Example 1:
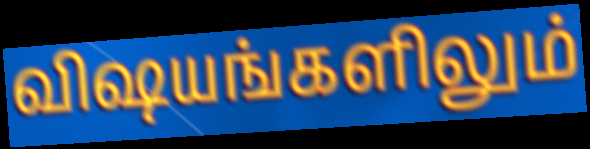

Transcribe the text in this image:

விஷயங்களிலும்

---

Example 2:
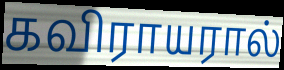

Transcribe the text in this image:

கவிராயரால்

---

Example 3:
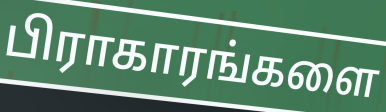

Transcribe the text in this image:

பிராகாரங்களை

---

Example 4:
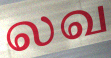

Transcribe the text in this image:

லவ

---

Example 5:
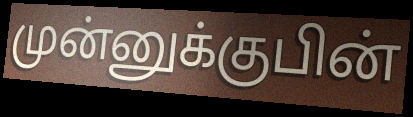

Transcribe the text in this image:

முன்னுக்குபின்